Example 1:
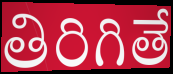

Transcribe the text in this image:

తిరిగితే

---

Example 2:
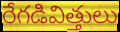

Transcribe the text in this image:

రేగడివిత్తులు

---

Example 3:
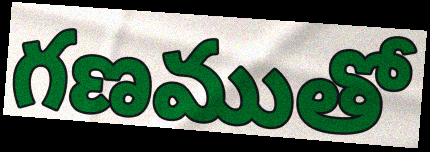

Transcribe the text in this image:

గణముతో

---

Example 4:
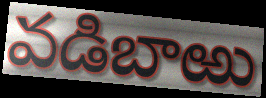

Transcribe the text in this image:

వడిబాఱు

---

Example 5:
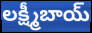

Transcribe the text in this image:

లక్ష్మీబాయ్